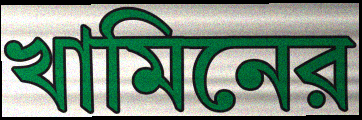
খামিনের